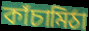
কাঁচামিঠা